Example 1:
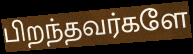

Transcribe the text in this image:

பிறந்தவர்களே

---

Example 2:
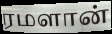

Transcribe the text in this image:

ரமளான்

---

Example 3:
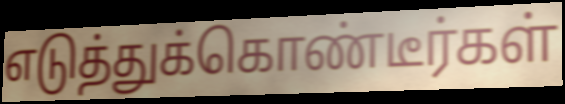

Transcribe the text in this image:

எடுத்துக்கொண்டீர்கள்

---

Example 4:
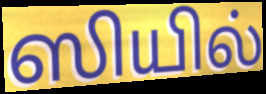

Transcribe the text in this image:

ஸியில்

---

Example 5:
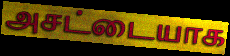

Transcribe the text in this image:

அசட்டையாக